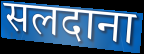
सलदाना